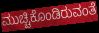
ಮುಚ್ಚಿಕೊಂಡಿರುವಂತೆ